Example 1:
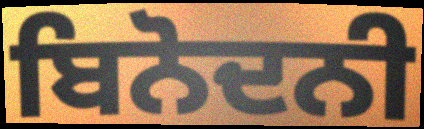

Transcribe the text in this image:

ਬਿਨੋਦਨੀ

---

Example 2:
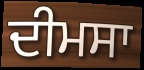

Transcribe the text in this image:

ਦੀਮਸਾ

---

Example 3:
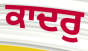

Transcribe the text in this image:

ਕਾਦਰੁ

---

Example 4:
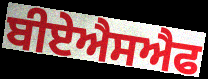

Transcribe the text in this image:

ਬੀਏਐਸਐਫ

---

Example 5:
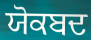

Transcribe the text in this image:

ਯੋਕਬਦ